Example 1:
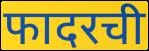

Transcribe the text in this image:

फादरची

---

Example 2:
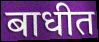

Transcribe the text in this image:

बाधीत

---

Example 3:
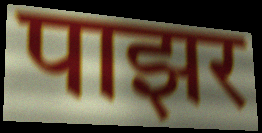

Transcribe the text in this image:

पाझर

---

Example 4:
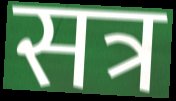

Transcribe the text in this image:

सत्र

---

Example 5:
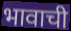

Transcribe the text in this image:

भावाची